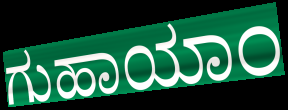
ಗುಹಾಯಾಂ